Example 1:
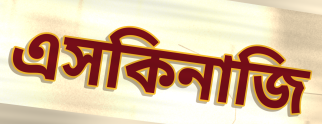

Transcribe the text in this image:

এসকিনাজি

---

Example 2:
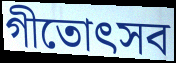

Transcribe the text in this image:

গীতোৎসব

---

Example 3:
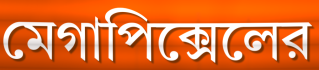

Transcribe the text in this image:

মেগাপিক্সেলের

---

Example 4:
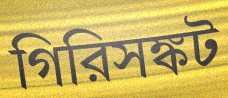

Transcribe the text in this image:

গিরিসঙ্কট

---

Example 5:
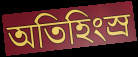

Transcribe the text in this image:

অতিহিংস্র